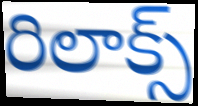
రిలాక్స్